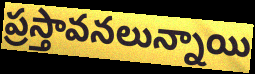
ప్రస్తావనలున్నాయి